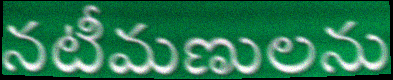
నటీమణులను